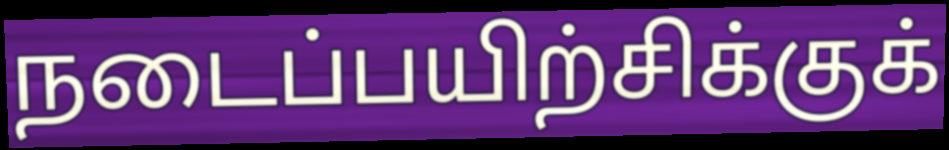
நடைப்பயிற்சிக்குக்